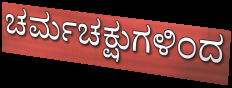
ಚರ್ಮಚಕ್ಷುಗಳಿಂದ